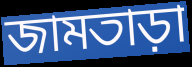
জামতাড়া